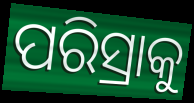
ପରିସ୍ରାକୁ